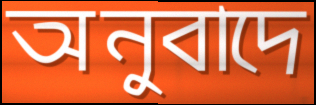
অনুবাদে